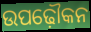
ଉପଢ଼ୌକନ